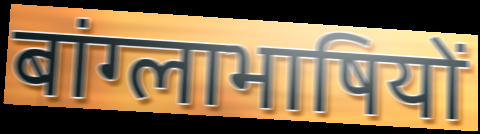
बांग्लाभाषियों